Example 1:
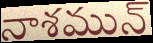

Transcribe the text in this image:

నాశమున్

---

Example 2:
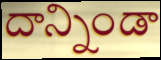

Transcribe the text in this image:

దాన్నిండా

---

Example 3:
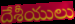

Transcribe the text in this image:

దేశీయులు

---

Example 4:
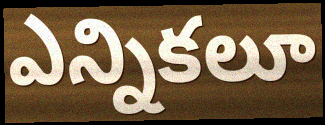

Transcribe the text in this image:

ఎన్నికలూ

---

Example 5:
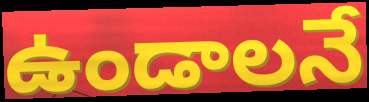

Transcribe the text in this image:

ఉండాలనే